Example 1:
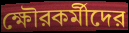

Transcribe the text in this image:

ক্ষৌরকর্মীদের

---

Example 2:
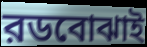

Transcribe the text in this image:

রডবোঝাই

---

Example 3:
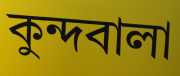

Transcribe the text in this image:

কুন্দবালা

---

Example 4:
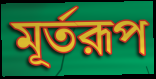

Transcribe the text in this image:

মূর্তরূপ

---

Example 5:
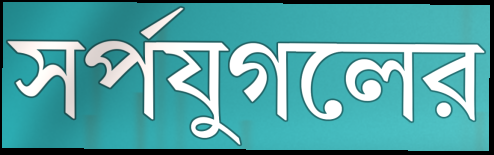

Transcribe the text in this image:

সর্পযুগলের